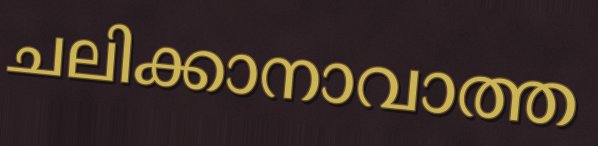
ചലിക്കാനാവാത്ത